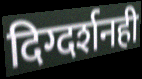
दिग्दर्शनही